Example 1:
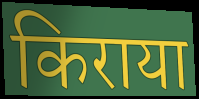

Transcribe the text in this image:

किराया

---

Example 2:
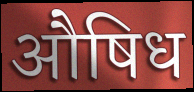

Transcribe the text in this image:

औषिध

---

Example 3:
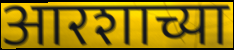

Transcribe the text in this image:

आरशाच्या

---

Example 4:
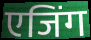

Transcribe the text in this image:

एजिंग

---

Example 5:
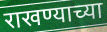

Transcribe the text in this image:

राखण्याच्या